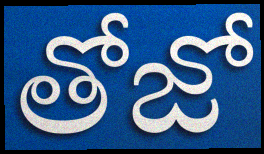
తోజో